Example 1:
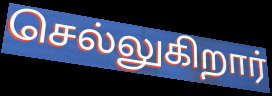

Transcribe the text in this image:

செல்லுகிறார்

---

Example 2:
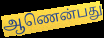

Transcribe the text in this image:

ஆணென்பது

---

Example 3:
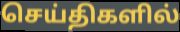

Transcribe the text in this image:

செய்திகளில்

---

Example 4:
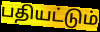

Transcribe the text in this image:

பதியட்டும்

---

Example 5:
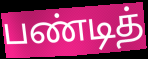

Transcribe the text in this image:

பண்டித்